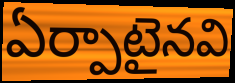
ఏర్పాటైనవి